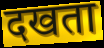
दखता